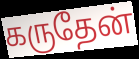
கருதேன்